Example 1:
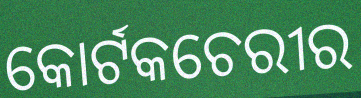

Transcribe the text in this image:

କୋର୍ଟକଚେରୀର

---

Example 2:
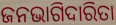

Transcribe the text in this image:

ଜନଭାଗିଦାରିତା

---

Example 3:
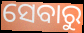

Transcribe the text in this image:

ସେବାରୁ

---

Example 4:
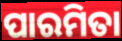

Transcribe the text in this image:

ପାରମିତା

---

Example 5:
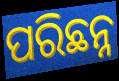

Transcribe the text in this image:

ପରିଛନ୍ନ